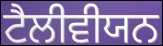
ਟੈਲੀਵੀਯਨ